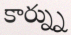
కార్న్ను